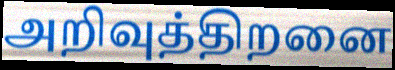
அறிவுத்திறனை